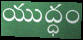
యుద్ధం